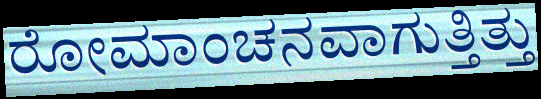
ರೋಮಾಂಚನವಾಗುತ್ತಿತ್ತು